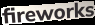
fireworks